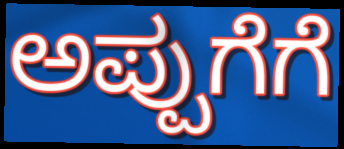
ಅಪ್ಪುಗೆಗೆ